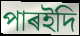
পাৰইদি